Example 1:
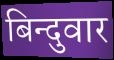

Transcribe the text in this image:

बिन्दुवार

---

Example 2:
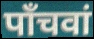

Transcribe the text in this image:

पाँचवां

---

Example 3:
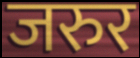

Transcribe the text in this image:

जरुर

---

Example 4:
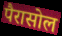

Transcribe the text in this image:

पैरासोल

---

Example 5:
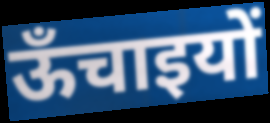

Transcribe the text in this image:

ऊँचाइयों